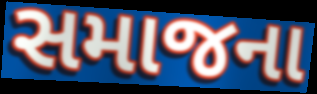
સમાજના